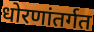
धोरणांतर्गत